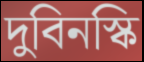
দুবিনস্কি